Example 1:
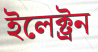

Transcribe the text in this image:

ইলেক্ট্ৰন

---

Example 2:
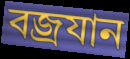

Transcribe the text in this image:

বজ্ৰযান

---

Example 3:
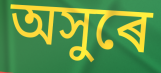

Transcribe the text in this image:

অসুৰে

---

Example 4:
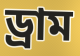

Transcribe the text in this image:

ড্ৰাম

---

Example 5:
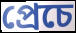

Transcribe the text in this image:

প্ৰেচে